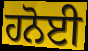
ਹਨੋਈ